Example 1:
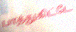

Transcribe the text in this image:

பாத்துகிட்டே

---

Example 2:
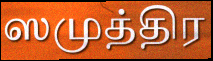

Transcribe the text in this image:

ஸமுத்திர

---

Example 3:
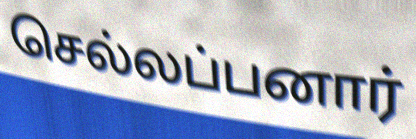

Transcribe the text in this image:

செல்லப்பனார்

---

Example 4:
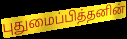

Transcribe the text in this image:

புதுமைப்பித்தனின்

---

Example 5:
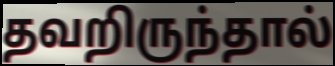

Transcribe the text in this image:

தவறிருந்தால்